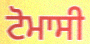
ਟੋਮਾਸੀ